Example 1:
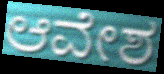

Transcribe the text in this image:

ಆವೇಶ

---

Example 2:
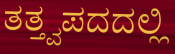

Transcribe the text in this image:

ತತ್ತ್ವಪದದಲ್ಲಿ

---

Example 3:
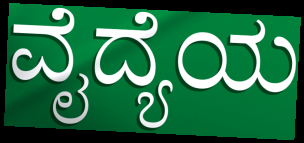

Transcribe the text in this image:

ವೈದ್ಯೆಯ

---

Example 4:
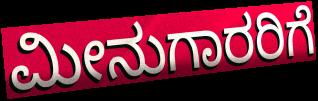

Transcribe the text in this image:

ಮೀನುಗಾರರಿಗೆ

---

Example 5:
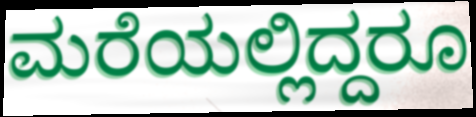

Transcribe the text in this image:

ಮರೆಯಲ್ಲಿದ್ದರೂ